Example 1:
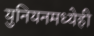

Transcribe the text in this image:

युनियनमध्येही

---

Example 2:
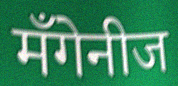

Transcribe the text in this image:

मँगेनीज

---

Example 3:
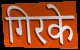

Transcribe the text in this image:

गिरके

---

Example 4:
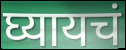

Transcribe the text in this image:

घ्यायचं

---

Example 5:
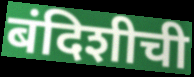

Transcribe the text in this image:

बंदिशीची